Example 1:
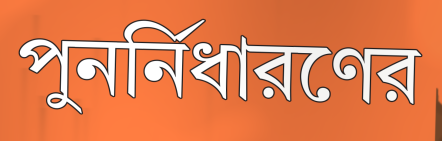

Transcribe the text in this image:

পুনর্নিধারণের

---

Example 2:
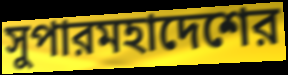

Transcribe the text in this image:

সুপারমহাদেশের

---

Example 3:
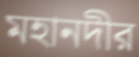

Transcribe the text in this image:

মহানদীর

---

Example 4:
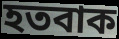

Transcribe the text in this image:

হতবাক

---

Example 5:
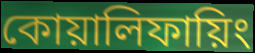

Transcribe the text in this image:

কোয়ালিফায়িং